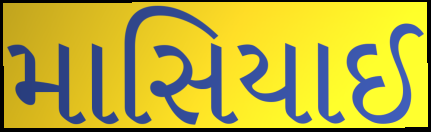
માસિયાઈ